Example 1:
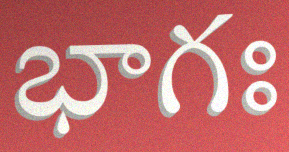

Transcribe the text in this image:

భాగః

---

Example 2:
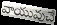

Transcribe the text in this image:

వాయువుచే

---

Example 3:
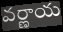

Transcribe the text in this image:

వర్ణాయ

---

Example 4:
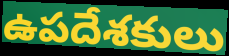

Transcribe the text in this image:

ఉపదేశకులు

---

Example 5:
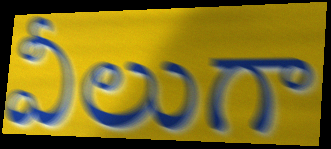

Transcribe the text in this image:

వీలుగా